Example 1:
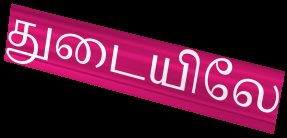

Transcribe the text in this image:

துடையிலே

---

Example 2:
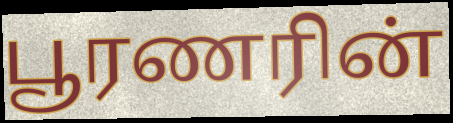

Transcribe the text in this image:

பூரணரின்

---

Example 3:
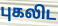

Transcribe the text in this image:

புகலிட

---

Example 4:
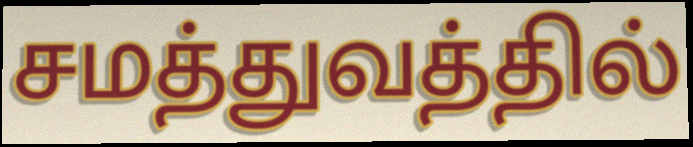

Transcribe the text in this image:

சமத்துவத்தில்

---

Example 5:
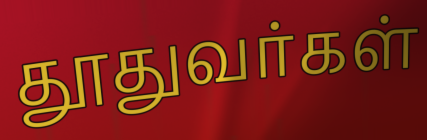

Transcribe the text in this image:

தூதுவர்கள்